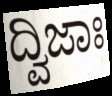
ದ್ವಿಜಾಃ